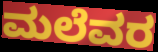
ಮಲೆವರ